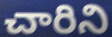
చారిని